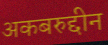
अकबरुद्दीन